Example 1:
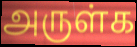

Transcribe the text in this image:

அருள்க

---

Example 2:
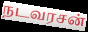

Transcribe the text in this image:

நடவரசன்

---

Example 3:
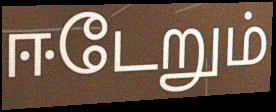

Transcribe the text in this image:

ஈடேறும்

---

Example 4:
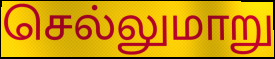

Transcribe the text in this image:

செல்லுமாறு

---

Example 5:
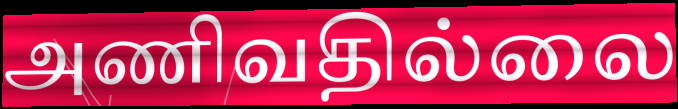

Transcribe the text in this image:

அணிவதில்லை